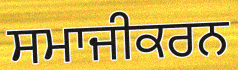
ਸਮਾਜੀਕਰਨ